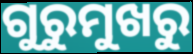
ଗୁରୁମୁଖରୁ